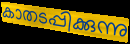
കാതടപ്പിക്കുന്നു